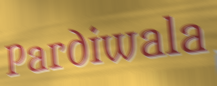
Pardiwala